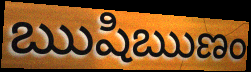
ఋషిఋణం